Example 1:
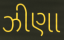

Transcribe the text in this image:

ઝીણા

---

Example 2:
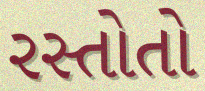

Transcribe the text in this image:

રસ્તોતો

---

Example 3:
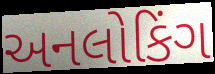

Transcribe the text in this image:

અનલોકિંગ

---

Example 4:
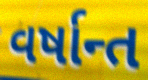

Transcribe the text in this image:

વર્ષાન્ત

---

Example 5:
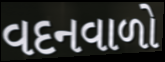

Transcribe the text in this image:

વદનવાળો